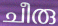
ചീരു